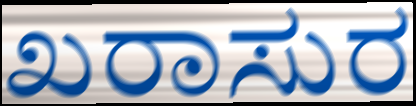
ಖರಾಸುರ